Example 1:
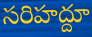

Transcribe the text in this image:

సరిహద్దూ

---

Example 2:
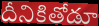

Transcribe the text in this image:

దీనికితోడూ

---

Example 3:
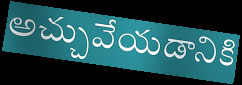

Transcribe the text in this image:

అచ్చువేయడానికి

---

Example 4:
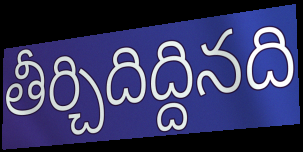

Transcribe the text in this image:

తీర్చిదిద్దినది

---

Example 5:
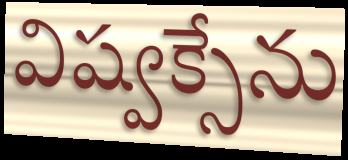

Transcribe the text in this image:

విష్వక్సేను